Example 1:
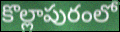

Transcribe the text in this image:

కొల్లాపురంలో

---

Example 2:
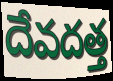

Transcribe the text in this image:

దేవదత్త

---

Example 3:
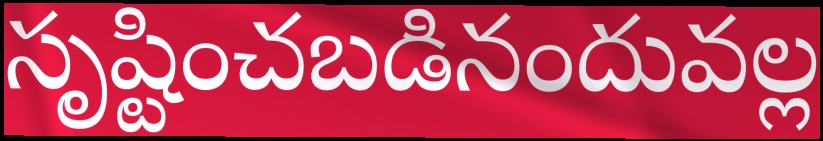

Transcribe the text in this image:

సృష్టించబడినందువల్ల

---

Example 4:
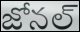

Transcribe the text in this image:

జోనల్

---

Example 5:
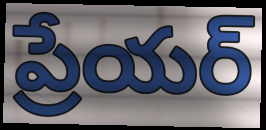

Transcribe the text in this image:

ప్రేయర్